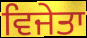
ਵਿਜੇਤਾ